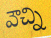
వౌచ్ని